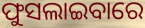
ଫୁସଲାଇବାରେ